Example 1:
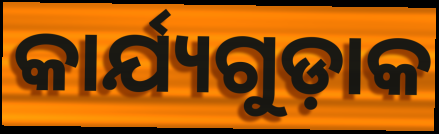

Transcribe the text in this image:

କାର୍ଯ୍ୟଗୁଡ଼ାକ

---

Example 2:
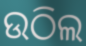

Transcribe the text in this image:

ଉଠିଲ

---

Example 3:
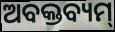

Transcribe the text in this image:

ଅବକ୍ତବ୍ୟମ୍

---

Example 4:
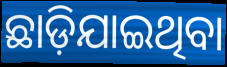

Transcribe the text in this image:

ଛାଡ଼ିଯାଇଥିବା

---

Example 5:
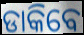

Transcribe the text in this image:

ଡାକିବେ